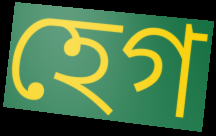
হেগ